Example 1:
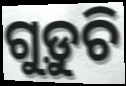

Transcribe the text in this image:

ଗୁଡ଼ୁଚି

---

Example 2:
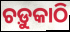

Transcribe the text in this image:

ଚଡ଼ୁକାଠି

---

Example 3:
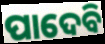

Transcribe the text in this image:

ପାଦେବି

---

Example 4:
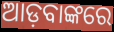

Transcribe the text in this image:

ଆଡ଼ବାଙ୍କରେ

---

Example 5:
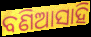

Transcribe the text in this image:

ବଣିଆସାହି